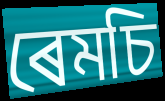
ৰেমচি